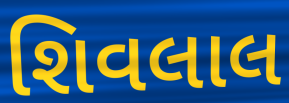
શિવલાલ